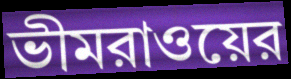
ভীমরাওয়ের